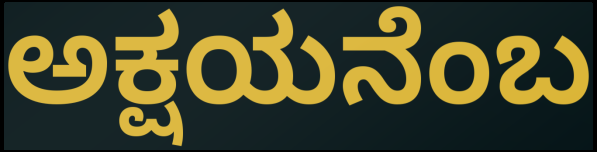
ಅಕ್ಷಯನೆಂಬ